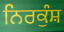
ਨਿਰਕੁੰਸ਼